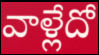
వాళ్లేదో